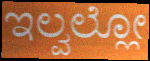
ಇಲ್ವಲ್ಲೋ